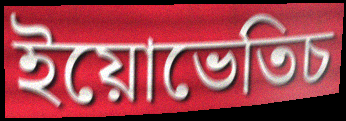
ইয়োভেতিচ